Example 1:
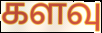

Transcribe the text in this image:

களவு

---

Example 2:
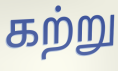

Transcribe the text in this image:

கற்று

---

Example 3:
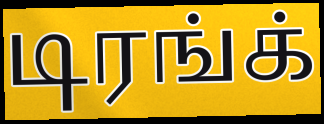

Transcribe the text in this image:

டிரங்க்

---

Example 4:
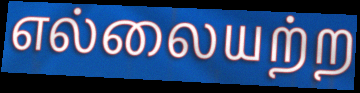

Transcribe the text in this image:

எல்லையற்ற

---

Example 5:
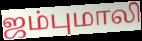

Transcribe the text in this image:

ஜம்புமாலி